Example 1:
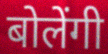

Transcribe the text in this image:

बोलेंगी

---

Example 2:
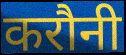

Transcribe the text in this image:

करौनी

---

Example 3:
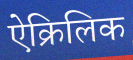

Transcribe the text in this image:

ऐक्रिलिक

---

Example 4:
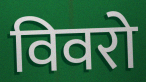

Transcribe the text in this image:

विवरो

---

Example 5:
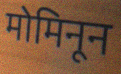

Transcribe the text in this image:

मोमिनून